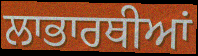
ਲਾਭਾਰਥੀਆਂ